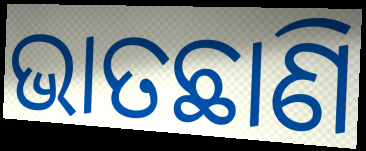
ଭାତଛାଣି